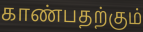
காண்பதற்கும்